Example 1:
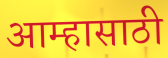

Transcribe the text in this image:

आम्हासाठी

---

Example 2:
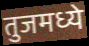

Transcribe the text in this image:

तुजमध्ये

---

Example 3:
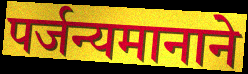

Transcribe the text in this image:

पर्जन्यमानाने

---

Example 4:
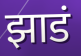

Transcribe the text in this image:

झाडं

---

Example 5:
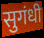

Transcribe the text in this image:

सुगंधी